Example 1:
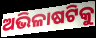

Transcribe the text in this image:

ଅଭିଳାଷଟିକୁ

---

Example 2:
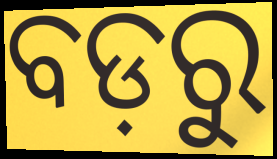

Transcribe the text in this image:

ବଡ଼ରୁ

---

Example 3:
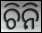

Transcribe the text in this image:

ଚିନି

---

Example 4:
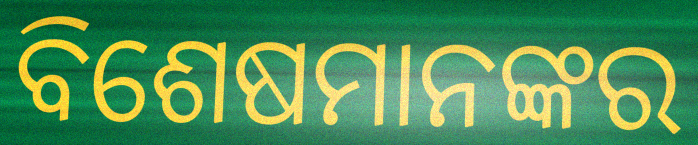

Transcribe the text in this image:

ବିଶେଷମାନଙ୍କର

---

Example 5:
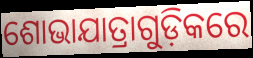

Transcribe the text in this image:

ଶୋଭାଯାତ୍ରାଗୁଡ଼ିକରେ